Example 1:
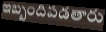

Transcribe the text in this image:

ఇబ్బందిపడతారు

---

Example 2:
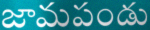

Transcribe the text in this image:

జామపండు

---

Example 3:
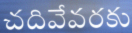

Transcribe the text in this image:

చదివేవరకు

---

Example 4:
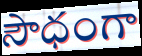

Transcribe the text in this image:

సౌధంగా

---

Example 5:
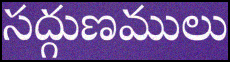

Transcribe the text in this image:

సద్గుణములు